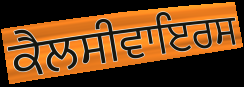
ਕੈਲਸੀਵਾਇਰਸ